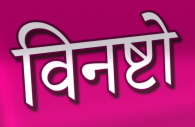
विनष्टो